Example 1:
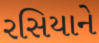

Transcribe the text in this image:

રસિયાને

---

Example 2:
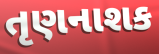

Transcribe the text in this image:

તૃણનાશક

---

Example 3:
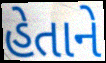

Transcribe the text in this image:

હેતાને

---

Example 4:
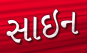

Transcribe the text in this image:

સાઇન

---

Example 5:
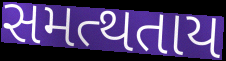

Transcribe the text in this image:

સમત્થતાય